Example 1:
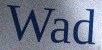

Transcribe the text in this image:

Wad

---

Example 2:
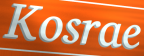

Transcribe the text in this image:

Kosrae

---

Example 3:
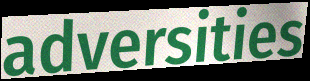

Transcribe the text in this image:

adversities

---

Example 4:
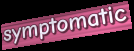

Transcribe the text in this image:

symptomatic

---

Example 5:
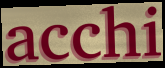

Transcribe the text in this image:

acchi